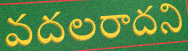
వదలరాదని